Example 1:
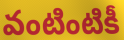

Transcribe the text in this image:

వంటింటికీ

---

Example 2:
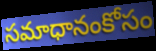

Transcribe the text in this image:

సమాధానంకోసం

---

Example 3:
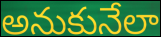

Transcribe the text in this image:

అనుకునేలా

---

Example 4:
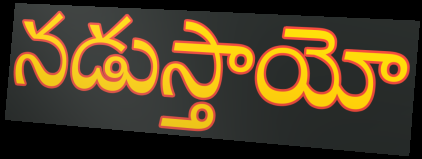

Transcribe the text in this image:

నడుస్తాయో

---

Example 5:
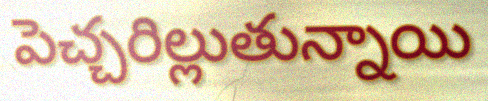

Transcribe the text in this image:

పెచ్చరిల్లుతున్నాయి